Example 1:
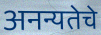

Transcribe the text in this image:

अनन्यतेचे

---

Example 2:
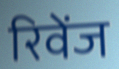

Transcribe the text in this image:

रिवेंज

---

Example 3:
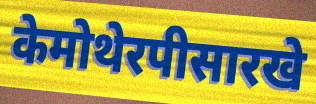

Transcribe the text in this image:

केमोथेरपीसारखे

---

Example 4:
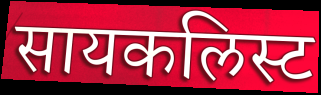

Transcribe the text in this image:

सायकलिस्ट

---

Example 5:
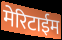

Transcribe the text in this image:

मेरिटाईम